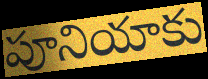
పూనియాకు